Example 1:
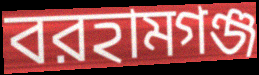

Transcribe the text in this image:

বরহামগঞ্জ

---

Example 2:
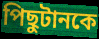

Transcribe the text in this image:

পিছুটানকে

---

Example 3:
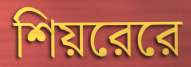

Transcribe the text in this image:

শিয়রেরে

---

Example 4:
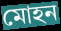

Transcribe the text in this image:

মোহন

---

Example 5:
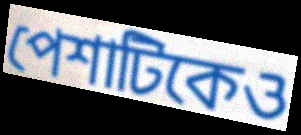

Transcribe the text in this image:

পেশাটিকেও